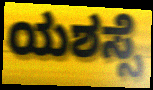
ಯಶಸ್ಸೆ